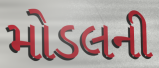
મોડલની